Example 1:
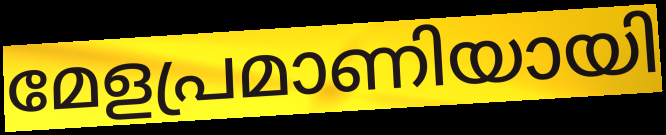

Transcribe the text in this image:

മേളപ്രമാണിയായി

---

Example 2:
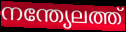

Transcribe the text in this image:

നന്ത്യേലത്ത്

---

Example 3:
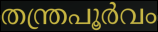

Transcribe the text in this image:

തന്ത്രപൂർവം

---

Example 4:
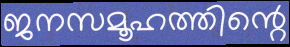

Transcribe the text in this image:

ജനസമൂഹത്തിന്റെ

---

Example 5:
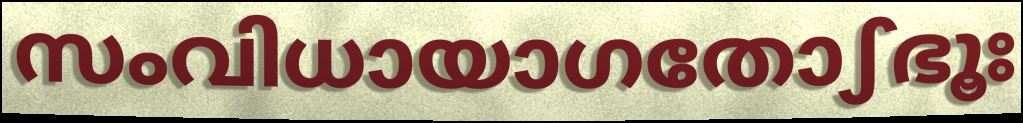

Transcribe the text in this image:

സംവിധായാഗതോഽഭൂഃ